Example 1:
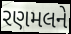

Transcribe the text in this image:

રણમલને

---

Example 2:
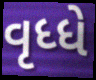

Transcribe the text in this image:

વૃધ્ધે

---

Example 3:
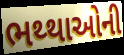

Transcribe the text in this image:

ભથ્થાઓની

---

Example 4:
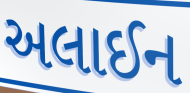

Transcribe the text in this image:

અલાઈન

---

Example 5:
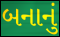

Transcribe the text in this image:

બનાનું